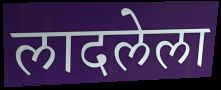
लादलेला